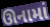
ઊનામાં